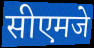
सीएमजे